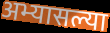
अभ्यासल्या